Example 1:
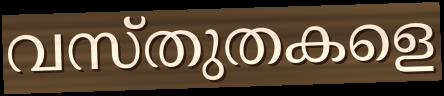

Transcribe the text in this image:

വസ്തുതകളെ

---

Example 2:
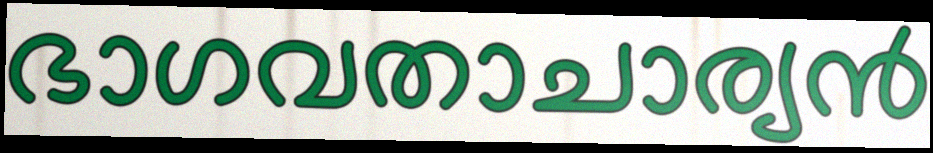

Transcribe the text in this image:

ഭാഗവതാചാര്യൻ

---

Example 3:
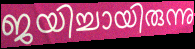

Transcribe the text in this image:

ജയിച്ചായിരുന്നു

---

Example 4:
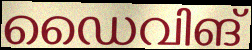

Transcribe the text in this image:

ഡൈവിങ്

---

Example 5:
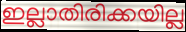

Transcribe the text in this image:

ഇല്ലാതിരിക്കയില്ല